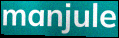
manjule